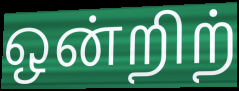
ஒன்றிற்